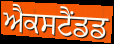
ਐਕਸਟੈਂਡਡ